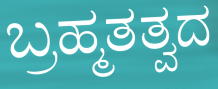
ಬ್ರಹ್ಮತತ್ವದ